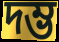
দম্ভ